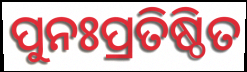
ପୁନଃପ୍ରତିଷ୍ଠିତ